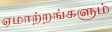
ஏமாற்றங்களும்